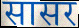
सासर